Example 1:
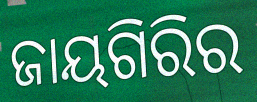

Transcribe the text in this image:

ଜାୟଗିରିର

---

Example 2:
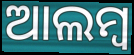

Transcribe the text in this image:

ଆଲମ୍ବ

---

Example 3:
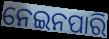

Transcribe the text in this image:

ନେଇନପାରି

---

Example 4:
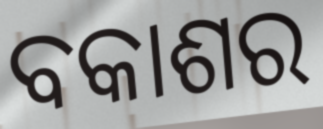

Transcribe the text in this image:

ବକାଶର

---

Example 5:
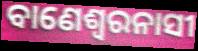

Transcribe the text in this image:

ବାଣେଶ୍ୱରନାସୀ